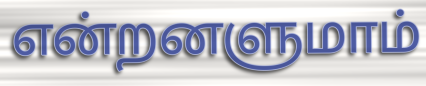
என்றனளுமாம்